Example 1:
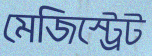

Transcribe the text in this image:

মেজিস্ট্রেট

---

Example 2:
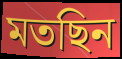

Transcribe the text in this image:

মতছিন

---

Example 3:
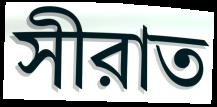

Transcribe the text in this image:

সীরাত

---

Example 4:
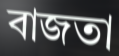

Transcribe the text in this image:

বাজতা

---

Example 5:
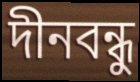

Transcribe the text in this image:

দীনবন্ধু